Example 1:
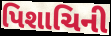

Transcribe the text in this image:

પિશાચિની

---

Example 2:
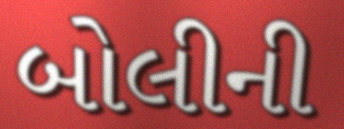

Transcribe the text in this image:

બોલીની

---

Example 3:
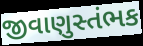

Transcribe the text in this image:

જીવાણુસ્તંભક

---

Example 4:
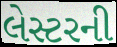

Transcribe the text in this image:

લેસ્ટરની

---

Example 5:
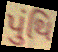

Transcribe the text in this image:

પુંથિ